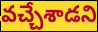
వచ్చేశాడని